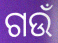
ଗଉଁ